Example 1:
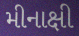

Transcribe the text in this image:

મીનાક્ષી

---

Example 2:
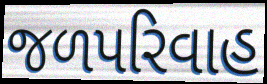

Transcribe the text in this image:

જળપરિવાહ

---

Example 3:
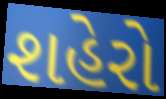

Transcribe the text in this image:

શહેરો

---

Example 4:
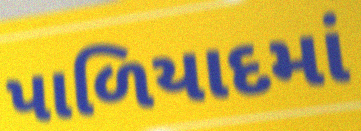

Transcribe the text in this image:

પાળિયાદમાં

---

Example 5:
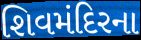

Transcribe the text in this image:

શિવમંદિરના